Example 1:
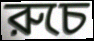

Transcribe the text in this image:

রুচে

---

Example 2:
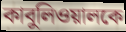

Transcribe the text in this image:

কাবুলিওয়ালকে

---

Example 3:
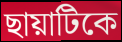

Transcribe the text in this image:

ছায়াটিকে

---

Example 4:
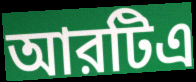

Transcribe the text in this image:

আরটিএ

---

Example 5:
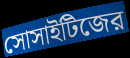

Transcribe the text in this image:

সোসাইটিজের